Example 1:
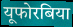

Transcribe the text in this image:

यूफोरबिया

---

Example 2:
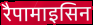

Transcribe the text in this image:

रैपामाइसिन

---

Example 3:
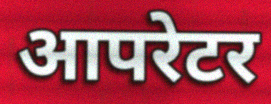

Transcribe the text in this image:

आपरेटर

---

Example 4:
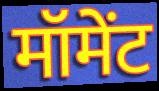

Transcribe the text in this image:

मॉमेंट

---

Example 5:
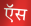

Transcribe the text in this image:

ऍस